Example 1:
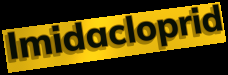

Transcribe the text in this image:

Imidacloprid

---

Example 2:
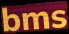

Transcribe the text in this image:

bms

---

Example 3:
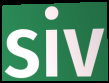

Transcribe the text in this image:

siv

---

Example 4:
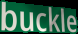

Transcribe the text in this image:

buckle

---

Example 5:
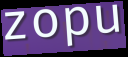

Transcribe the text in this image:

zopu